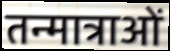
तन्मात्राओं